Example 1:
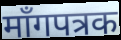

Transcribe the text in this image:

माँगपत्रक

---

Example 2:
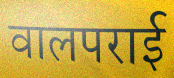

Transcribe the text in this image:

वालपराई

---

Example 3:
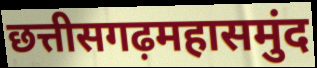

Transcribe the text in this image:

छत्तीसगढ़महासमुंद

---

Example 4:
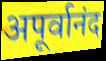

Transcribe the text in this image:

अपूर्वानंद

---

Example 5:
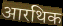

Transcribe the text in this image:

आरथिक